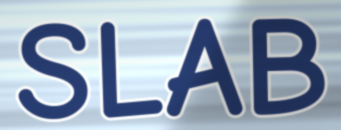
SLAB